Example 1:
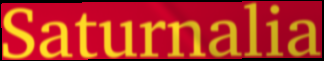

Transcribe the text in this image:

Saturnalia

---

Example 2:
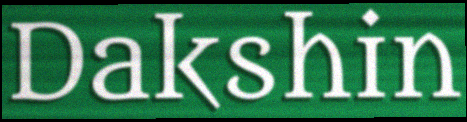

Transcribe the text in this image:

Dakshin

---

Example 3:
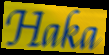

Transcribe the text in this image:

Haka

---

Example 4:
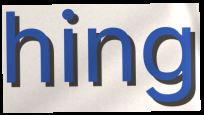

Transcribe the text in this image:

hing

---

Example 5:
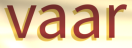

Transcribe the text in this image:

vaar